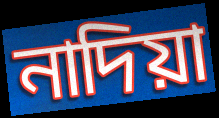
নাদিয়া